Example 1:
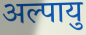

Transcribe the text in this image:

अल्पायु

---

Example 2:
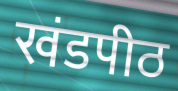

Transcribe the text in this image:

खंडपीठ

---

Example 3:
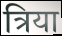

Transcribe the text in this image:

त्रिया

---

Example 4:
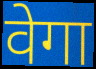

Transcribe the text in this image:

वेगा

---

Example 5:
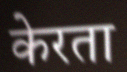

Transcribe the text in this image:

केरता